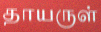
தாயருள்